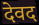
देवद